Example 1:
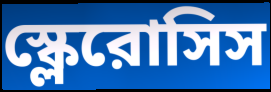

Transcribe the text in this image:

স্ক্লেরোসিস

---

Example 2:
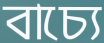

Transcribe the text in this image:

বাচ্যে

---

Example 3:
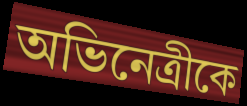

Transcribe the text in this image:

অভিনেত্রীকে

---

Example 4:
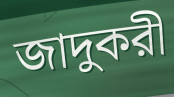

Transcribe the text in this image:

জাদুকরী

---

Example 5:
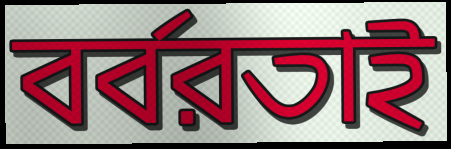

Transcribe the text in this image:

বর্বরতাই